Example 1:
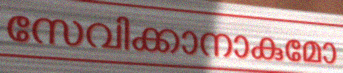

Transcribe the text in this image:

സേവിക്കാനാകുമോ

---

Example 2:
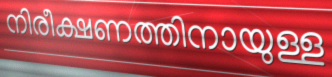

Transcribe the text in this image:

നിരീക്ഷണത്തിനായുള്ള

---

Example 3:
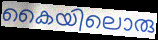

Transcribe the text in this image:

കൈയിലൊരു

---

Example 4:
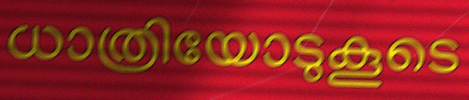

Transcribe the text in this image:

ധാത്രിയോടുകൂടെ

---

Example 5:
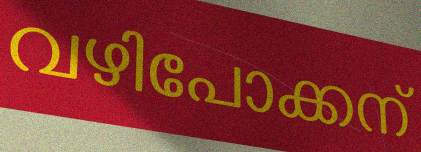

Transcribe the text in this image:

വഴിപോക്കന്